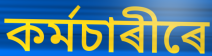
কৰ্মচাৰীৰে